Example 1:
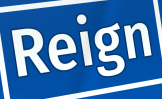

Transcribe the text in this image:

Reign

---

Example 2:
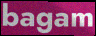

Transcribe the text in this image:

bagam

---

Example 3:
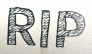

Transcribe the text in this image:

RIP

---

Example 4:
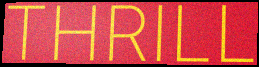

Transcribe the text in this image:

THRILL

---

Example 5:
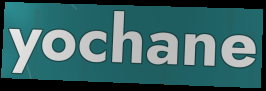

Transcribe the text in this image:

yochane